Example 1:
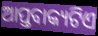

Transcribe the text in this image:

ଆପ୍ତବାକ୍ୟଟିଏ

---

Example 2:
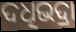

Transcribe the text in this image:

ଦଧିଭଦ୍ରା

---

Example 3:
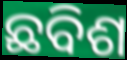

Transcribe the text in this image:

ଛବିଶ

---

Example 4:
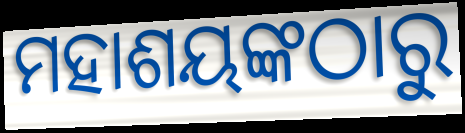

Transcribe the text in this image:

ମହାଶୟଙ୍କଠାରୁ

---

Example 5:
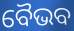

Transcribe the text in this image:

ବୈଭବ